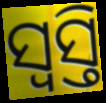
ସ୍ଵସ୍ତି